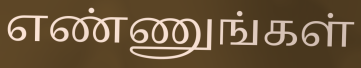
எண்ணுங்கள்